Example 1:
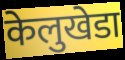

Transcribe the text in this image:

केलुखेडा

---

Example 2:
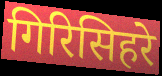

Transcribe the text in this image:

गिरिसिहरे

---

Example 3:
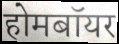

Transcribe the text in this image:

होमबॉयर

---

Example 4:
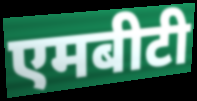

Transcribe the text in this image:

एमबीटी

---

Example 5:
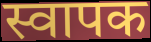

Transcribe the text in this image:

स्‍वापक